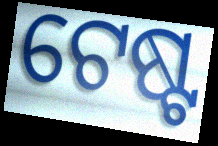
ଟେଷ୍ଟ